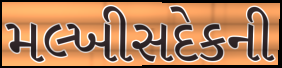
મલ્ખીસદેકની